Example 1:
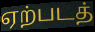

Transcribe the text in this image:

ஏற்படத்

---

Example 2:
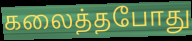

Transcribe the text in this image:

கலைத்தபோது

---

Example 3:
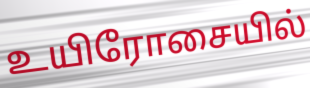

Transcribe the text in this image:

உயிரோசையில்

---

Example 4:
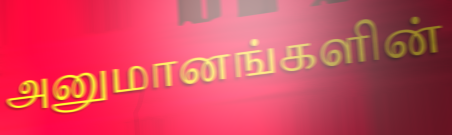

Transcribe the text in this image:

அனுமானங்களின்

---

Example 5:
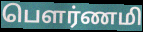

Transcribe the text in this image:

பௌர்ணமி